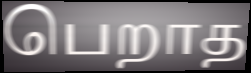
பெறாத